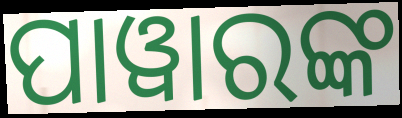
ପାୱାରଙ୍କ